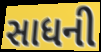
સાધની